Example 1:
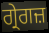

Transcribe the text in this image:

ਗ੍ਰੇਗਜ਼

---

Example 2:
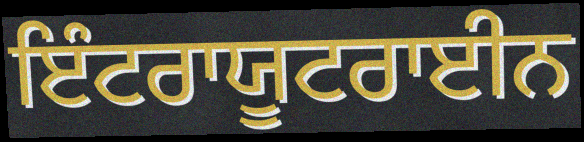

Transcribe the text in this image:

ਇੰਟਰਾਯੂਟਰਾਈਨ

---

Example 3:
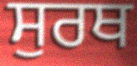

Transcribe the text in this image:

ਸੁਰਥ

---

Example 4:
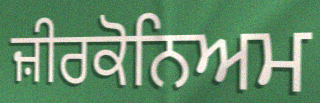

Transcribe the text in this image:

ਜ਼ੀਰਕੋਨਿਅਮ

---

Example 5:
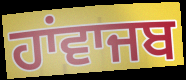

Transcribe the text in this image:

ਹਾਂਵਾਜਬ